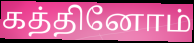
கத்தினோம்